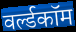
वर्ल्डकॉम